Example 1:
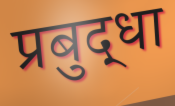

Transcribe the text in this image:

प्रबुद्धा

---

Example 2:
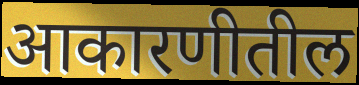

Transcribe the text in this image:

आकारणीतील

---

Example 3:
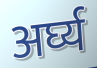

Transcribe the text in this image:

अर्घ्य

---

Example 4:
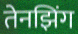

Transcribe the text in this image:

तेनझिंग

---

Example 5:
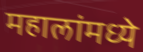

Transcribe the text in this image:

महालांमध्ये